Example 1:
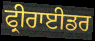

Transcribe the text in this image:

ਫ੍ਰੀਰਾਈਡਰ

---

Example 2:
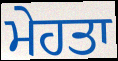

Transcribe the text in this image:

ਮੇਹਤਾ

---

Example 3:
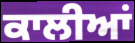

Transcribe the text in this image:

ਕਾਲੀਆਂ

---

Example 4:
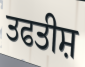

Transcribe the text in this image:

ਤਫਤੀਸ਼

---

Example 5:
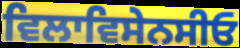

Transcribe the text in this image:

ਵਿਲਾਵਿਸੇਨਸੀਓ